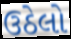
ઉઠેલો